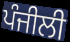
ਪੰਜੀਲੀ